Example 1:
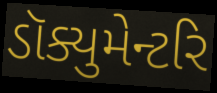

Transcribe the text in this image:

ડૉક્યુમેન્ટરિ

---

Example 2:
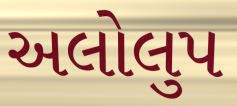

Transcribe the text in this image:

અલોલુપ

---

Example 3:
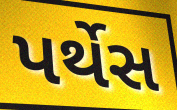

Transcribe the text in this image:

પર્થેસ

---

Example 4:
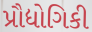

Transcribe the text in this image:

પ્રૌદ્યોગિકી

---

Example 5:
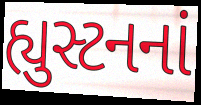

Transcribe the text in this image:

હ્યુસ્ટનનાં